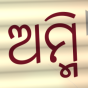
ଅମ୍ମି